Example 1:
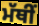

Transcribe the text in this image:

ਮੱਥੀਂ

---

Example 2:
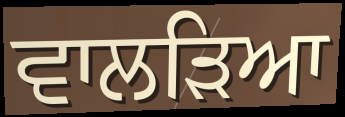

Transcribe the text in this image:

ਵਾਲੜਿਆ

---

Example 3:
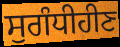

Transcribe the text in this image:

ਸੁਗੰਧੀਹੀਣ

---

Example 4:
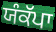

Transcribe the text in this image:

ਯੰਕੱਪਾ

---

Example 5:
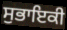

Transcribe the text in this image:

ਸੁਭਾਇਕੀ